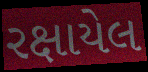
રક્ષાયેલ